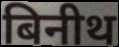
बिनीथ